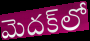
మెదక్‌లో